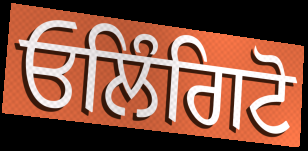
ਓਲਿੰਗਿਟੋ